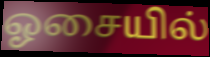
ஓசையில்